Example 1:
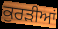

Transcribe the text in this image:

ਕੁਰੜੀਆਂ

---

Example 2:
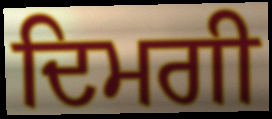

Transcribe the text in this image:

ਦਿਮਗੀ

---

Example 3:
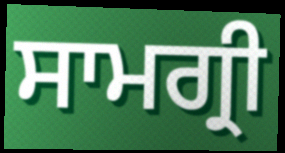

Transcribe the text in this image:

ਸਾਮਗ੍ਰੀ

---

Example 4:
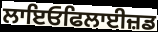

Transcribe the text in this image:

ਲਾਇਓਫਿਲਾਈਜ਼ਡ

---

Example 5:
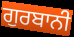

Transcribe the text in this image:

ਗੁਰਬਾਨੀ